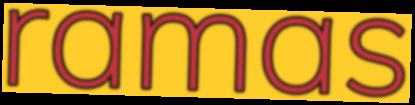
ramas